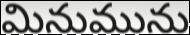
మినుమును